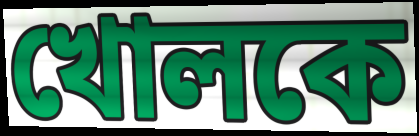
খোলকে